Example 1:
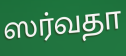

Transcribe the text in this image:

ஸர்வதா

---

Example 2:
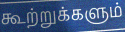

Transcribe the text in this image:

கூற்றுக்களும்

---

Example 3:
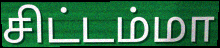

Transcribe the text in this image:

சிட்டம்மா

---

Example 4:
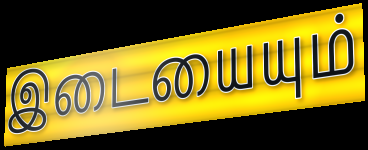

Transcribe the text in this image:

இடையையும்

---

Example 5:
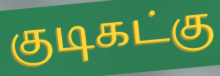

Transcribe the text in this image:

குடிகட்கு